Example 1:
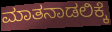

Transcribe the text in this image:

ಮಾತನಾಡಲಿಕ್ಕೆ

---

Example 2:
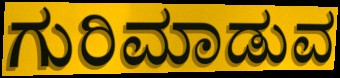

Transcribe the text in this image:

ಗುರಿಮಾಡುವ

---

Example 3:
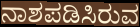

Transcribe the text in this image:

ನಾಶಪಡಿಸಿರುವ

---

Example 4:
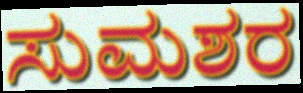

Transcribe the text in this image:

ಸುಮಶರ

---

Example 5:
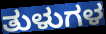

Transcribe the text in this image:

ತುಳುಗಳ